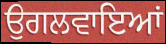
ਉਗਲਵਾਇਆਂ